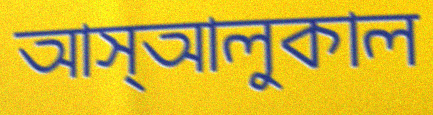
আস্আলুকাল